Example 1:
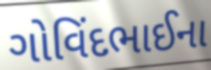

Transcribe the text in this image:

ગોવિંદભાઈના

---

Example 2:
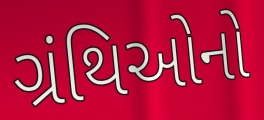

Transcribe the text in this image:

ગ્રંથિઓનો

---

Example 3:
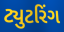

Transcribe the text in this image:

ટ્યુટરિંગ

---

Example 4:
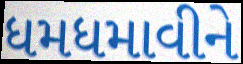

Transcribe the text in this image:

ધમધમાવીને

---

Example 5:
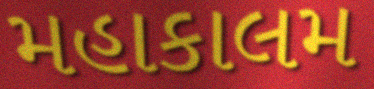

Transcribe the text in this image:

મહાકાલમ